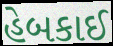
હેબકાઈ